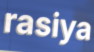
rasiya